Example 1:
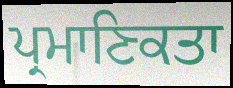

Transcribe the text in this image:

ਪ੍ਰਮਾਣਿਕਤਾ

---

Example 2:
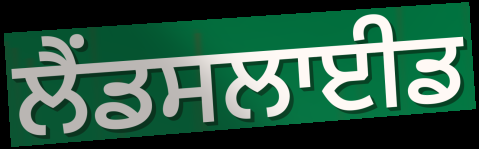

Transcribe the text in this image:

ਲੈਂਡਸਲਾਈਡ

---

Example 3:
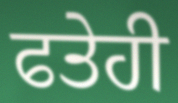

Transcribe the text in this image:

ਫਤੇਹੀ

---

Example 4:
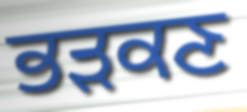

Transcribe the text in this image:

ਭੜਕਣ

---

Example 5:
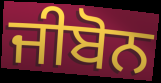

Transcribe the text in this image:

ਜੀਬੋਨ